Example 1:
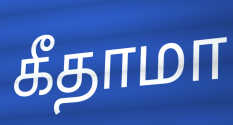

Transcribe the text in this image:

கீதாமா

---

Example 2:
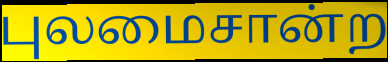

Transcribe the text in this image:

புலமைசான்ற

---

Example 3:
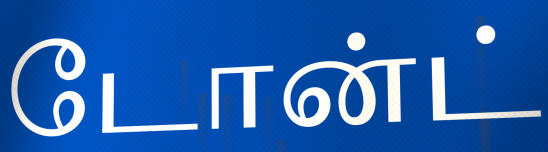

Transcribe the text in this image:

டோன்ட்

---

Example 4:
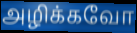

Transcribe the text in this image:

அழிக்கவோ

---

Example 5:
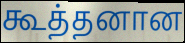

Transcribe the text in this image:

கூத்தனான